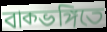
বাক্ভঙ্গিতে